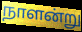
நாளன்று